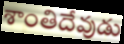
శాంతిదేవుడు